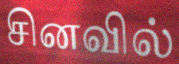
சினவில்